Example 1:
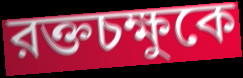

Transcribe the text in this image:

রক্তচক্ষুকে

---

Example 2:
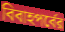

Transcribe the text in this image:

বিবাহপর্বের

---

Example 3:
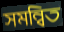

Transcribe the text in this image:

সমন্বিত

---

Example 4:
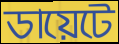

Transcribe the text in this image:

ডায়েটে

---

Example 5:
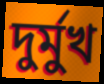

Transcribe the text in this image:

দুর্মুখ